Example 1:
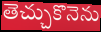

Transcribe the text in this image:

తెచ్చుకొనెను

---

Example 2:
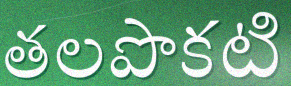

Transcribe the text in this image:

తలపొకటి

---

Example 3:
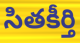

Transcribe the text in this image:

సితకీర్తి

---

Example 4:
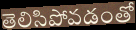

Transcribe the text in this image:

తెలిసిపోవడంతో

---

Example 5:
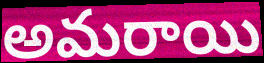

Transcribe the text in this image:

అమరాయి